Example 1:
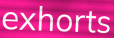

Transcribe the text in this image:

exhorts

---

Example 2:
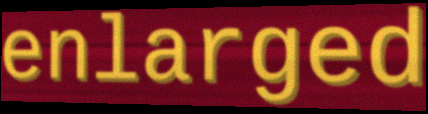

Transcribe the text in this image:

enlarged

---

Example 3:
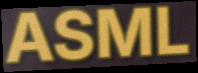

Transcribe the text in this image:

ASML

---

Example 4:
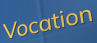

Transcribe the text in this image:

Vocation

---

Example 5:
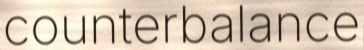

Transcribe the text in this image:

counterbalance